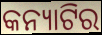
କନ୍ୟାଟିର